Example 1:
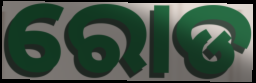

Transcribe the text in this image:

ରୋଡ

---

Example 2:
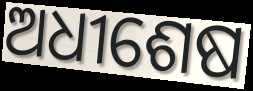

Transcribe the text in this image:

ଅଧୀଶେଷ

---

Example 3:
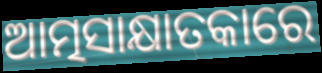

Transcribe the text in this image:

ଆତ୍ମସାକ୍ଷାତକାରେ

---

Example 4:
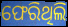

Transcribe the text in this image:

ଫେରିଥିଲି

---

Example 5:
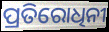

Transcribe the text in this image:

ପ୍ରତିରୋଧିନୀ